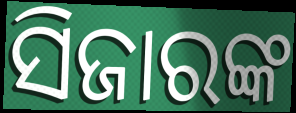
ସିଜାରଙ୍କ